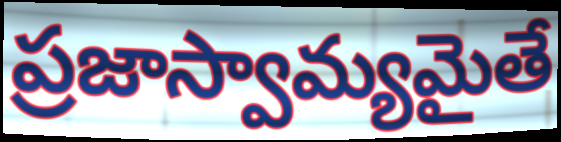
ప్రజాస్వామ్యమైతే